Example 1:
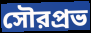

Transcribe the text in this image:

সৌরপ্রভ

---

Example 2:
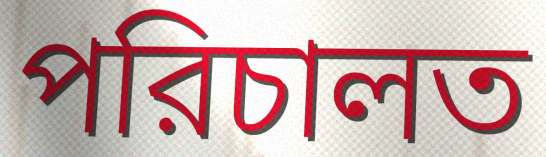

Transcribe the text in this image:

পরিচালত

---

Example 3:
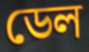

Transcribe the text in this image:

ডেল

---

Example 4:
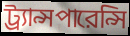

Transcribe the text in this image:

ট্র্যান্সপারেন্সি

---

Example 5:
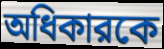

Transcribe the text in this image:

অধিকারকে